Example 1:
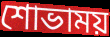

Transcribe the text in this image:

শোভাময়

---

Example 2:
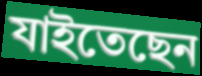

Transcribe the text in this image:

যাইতেছেন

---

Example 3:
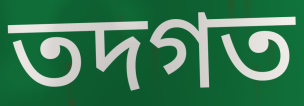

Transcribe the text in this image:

তদগত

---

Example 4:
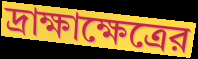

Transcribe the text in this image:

দ্রাক্ষাক্ষেত্রের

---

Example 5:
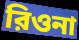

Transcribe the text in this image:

রিওনা